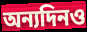
অন্যদিনও